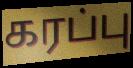
கரப்பு